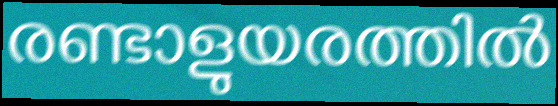
രണ്ടാളുയരത്തിൽ